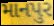
માનપુર